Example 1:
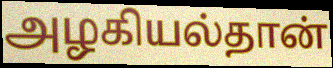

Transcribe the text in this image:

அழகியல்தான்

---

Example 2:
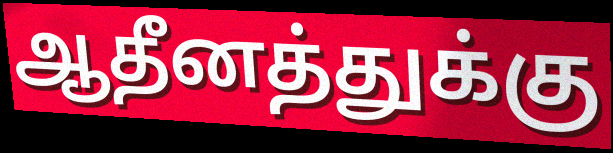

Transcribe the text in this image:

ஆதீனத்துக்கு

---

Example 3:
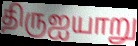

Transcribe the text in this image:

திருஐயாறு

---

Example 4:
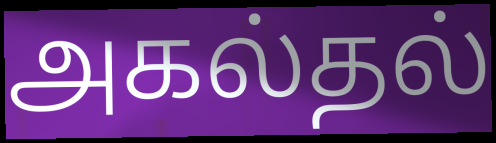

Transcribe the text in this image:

அகல்தல்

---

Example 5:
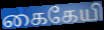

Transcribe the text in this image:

கைகேயி